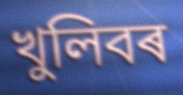
খুলিবৰ